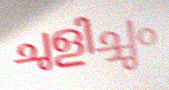
ചുളിച്ചും